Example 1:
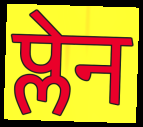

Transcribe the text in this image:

प्लेन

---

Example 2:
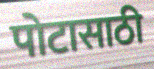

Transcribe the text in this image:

पोटासाठी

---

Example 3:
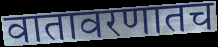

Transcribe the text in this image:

वातावरणातच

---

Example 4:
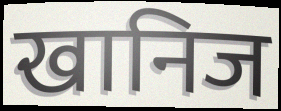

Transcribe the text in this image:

खानिज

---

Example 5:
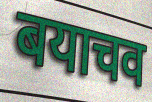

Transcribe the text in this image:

बयाचव